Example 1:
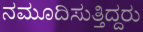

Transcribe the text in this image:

ನಮೂದಿಸುತ್ತಿದ್ದರು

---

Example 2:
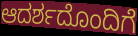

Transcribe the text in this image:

ಆದರ್ಶದೊಂದಿಗೆ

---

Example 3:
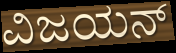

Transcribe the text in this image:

ವಿಜಯನ್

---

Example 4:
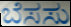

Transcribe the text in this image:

ಬೆಸಸು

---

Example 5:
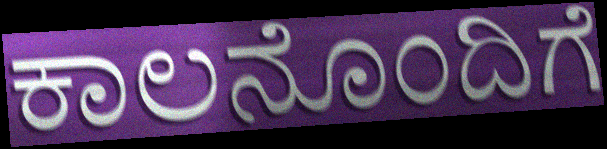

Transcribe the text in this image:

ಕಾಲನೊಂದಿಗೆ